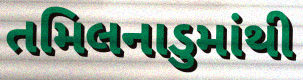
તમિલનાડુમાંથી